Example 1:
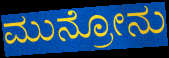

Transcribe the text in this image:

ಮುನ್ರೋನು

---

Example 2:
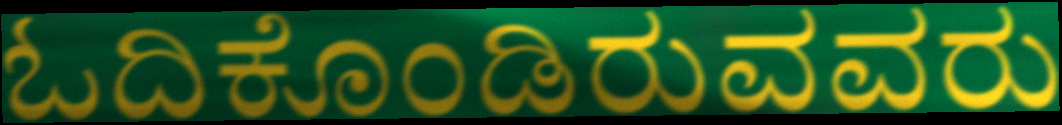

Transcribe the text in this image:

ಓದಿಕೊಂಡಿರುವವರು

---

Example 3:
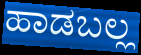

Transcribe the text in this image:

ಹಾಡಬಲ್ಲ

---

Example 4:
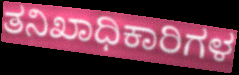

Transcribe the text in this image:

ತನಿಖಾಧಿಕಾರಿಗಳ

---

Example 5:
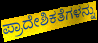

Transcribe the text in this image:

ಪ್ರಾದೇಶಿಕತೆಗಳನ್ನು